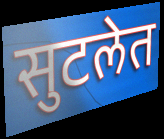
सुटलेत